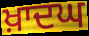
ਖ਼ਾਦਘ